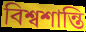
বিশ্বশান্তি